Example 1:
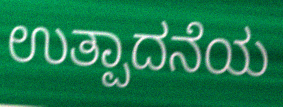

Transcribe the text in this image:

ಉತ್ಪಾದನೆಯ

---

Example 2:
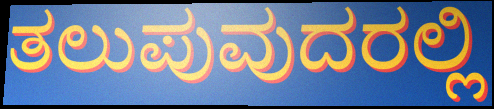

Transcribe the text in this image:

ತಲುಪುವುದರಲ್ಲಿ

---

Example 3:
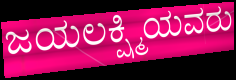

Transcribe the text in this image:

ಜಯಲಕ್ಷ್ಮಿಯವರು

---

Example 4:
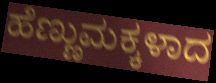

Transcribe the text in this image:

ಹೆಣ್ಣುಮಕ್ಕಳಾದ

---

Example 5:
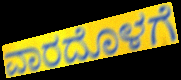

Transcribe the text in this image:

ವಾರದೊಳಗೆ